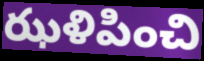
ఝళిపించి